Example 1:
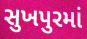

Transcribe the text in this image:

સુખપુરમાં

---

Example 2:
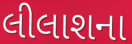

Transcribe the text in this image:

લીલાશના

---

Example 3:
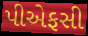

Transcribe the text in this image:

પીએફસી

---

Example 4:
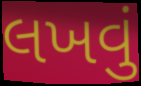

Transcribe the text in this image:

લખવું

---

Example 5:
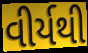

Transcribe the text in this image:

વીર્યથી